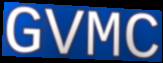
GVMC